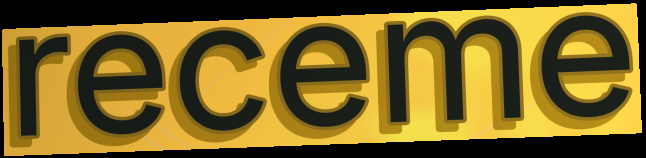
receme